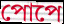
পোপে